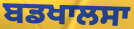
ਬਡਖਾਲਸਾ